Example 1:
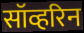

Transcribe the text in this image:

सॉव्हरिन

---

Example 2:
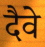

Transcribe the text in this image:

दैवे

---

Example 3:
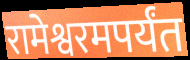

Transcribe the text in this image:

रामेश्वरमपर्यंत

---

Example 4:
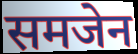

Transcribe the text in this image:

समजेन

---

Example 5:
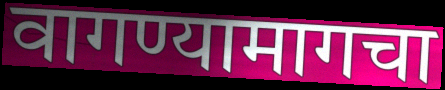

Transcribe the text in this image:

वागण्यामागचा